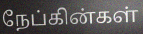
நேப்கின்கள்